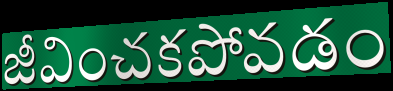
జీవించకపోవడం